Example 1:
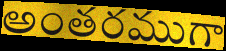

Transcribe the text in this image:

అంతరముగా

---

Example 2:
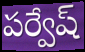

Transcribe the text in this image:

పర్వేష్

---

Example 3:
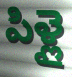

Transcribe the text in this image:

పిళ్లై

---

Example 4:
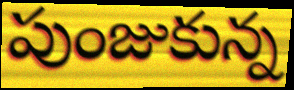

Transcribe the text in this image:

పుంజుకున్న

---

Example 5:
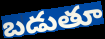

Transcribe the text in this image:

బడుతూ